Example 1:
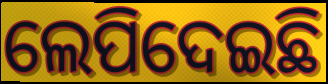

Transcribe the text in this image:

ଲେପିଦେଇଛି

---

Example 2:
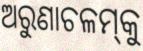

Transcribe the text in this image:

ଅରୁଣାଚଳମ୍‌କୁ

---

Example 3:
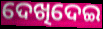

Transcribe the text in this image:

ଦେଖିଦେଇ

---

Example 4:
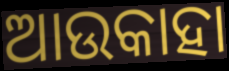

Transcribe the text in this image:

ଆଉକାହା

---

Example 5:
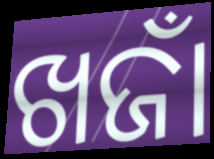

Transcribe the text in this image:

ଖଜାଁ